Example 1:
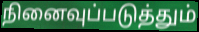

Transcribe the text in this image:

நினைவுப்படுத்தும்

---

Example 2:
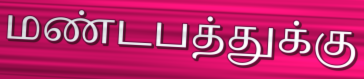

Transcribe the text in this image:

மண்டபத்துக்கு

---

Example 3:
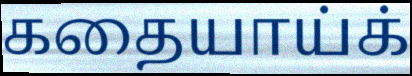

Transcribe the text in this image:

கதையாய்க்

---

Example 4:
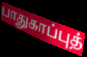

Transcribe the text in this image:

பாதுகாப்புத்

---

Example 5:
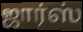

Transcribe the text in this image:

ஜார்ஸ்